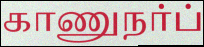
காணுநர்ப்